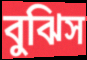
বুঝিস